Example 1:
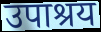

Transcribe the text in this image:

उपाश्रय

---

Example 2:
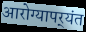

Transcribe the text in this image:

आरोग्यापर्यंत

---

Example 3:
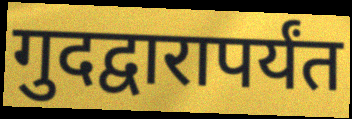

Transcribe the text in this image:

गुदद्वारापर्यंत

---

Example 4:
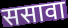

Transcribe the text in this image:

ससावा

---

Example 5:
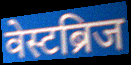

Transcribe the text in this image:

वेस्टब्रिज